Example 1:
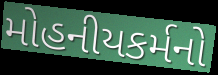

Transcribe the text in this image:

મોહનીયકર્મનો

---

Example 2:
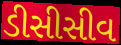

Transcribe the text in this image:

ડીસીસીવ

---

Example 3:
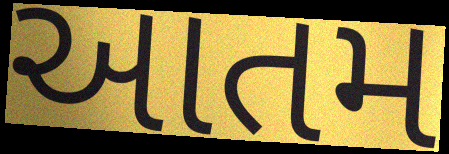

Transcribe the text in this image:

આતમ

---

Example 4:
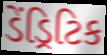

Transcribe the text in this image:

ડેંડ્રિટિક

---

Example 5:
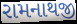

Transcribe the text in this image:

રામનાથજી